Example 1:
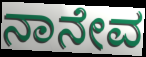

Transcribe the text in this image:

ನಾನೇವ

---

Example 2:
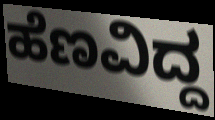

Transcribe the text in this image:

ಹೆಣವಿದ್ದ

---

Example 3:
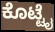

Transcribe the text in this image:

ಕೊಟ್ಟೈ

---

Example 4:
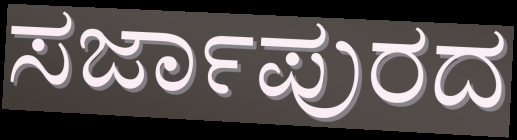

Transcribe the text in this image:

ಸರ್ಜಾಪುರದ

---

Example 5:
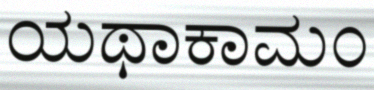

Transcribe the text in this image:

ಯಥಾಕಾಮಂ